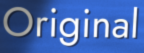
Original